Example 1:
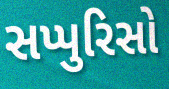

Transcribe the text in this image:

સપ્પુરિસો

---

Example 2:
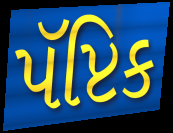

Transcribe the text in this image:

પૅપ્ટિક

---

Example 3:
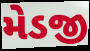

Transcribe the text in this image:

મેડજી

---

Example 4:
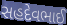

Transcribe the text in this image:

સહદેવભાઈ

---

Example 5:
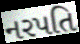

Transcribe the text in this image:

નરપતિ